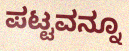
ಪಟ್ಟವನ್ನೂ